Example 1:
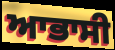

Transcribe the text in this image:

ਆਭਾਸੀ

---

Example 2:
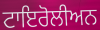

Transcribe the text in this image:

ਟਾਇਰੋਲੀਅਨ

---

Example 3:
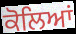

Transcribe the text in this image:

ਕੋਲਿਆਂ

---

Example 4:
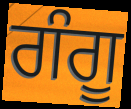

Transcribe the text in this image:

ਗੰਗੂ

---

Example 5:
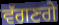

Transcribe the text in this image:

ਵੱਗਣਗੇ